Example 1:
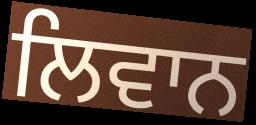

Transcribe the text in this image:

ਲਿਵਾਨ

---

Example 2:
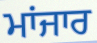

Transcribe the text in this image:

ਮਾਂਜਾਰ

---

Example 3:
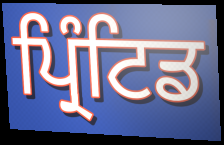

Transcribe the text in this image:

ਪ੍ਰਿੰਟਿਡ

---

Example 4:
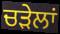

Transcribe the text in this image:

ਚੜੇਲਾਂ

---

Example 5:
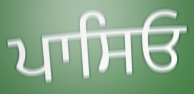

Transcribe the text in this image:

ਪਾਸਿਓ